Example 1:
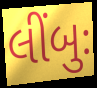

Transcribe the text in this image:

લીંબુઃ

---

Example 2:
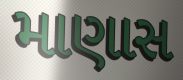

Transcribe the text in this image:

માણાસ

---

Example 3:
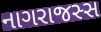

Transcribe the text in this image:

નાગરાજસ્સ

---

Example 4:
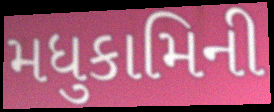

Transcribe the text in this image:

મધુકામિની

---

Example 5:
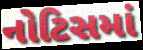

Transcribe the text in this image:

નોટિસમાં